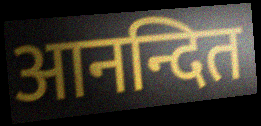
आनन्दित